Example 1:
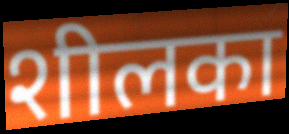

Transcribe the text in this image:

शीलका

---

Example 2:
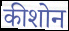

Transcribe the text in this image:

कीशोन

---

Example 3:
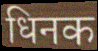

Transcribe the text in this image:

धिनक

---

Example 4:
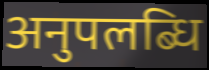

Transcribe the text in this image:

अनुपलब्धि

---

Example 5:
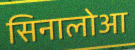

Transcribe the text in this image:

सिनालोआ